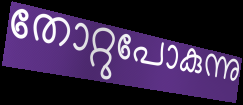
തോറ്റുപോകുന്നു